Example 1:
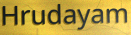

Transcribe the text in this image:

Hrudayam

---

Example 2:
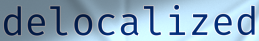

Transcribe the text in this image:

delocalized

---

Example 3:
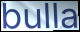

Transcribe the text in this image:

bulla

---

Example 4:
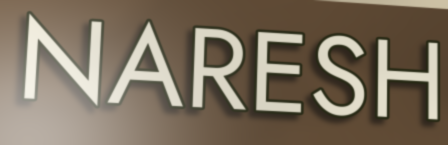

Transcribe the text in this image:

NARESH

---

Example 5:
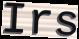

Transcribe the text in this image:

Irs